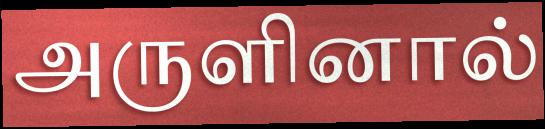
அருளினால்